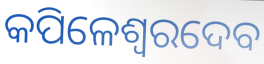
କପିଳେଶ୍ୱରଦେବ